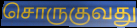
சொருகுவது